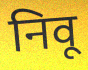
निवू